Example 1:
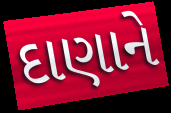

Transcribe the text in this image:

દાણાને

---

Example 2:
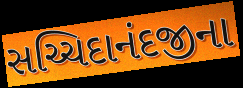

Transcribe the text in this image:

સચ્ચિદાનંદજીના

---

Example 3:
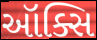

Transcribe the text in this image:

ઑક્સિ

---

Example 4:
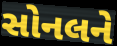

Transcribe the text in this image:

સોનલને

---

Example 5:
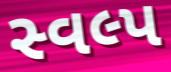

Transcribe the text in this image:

સ્વલ્પ